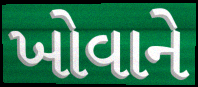
ખોવાને